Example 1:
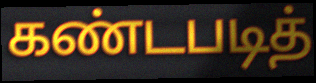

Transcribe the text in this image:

கண்டபடித்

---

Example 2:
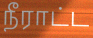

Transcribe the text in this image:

நீராட்ட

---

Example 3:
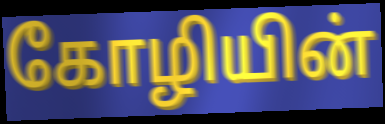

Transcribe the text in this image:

கோழியின்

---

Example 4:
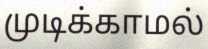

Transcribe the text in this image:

முடிக்காமல்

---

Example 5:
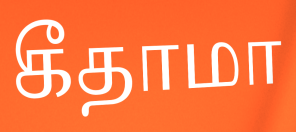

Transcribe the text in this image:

கீதாமா